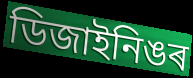
ডিজাইনিঙৰ